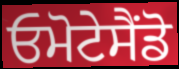
ਓਮੋਟੇਸੈਂਡੋ